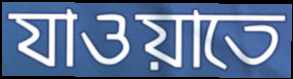
যাওয়াতে